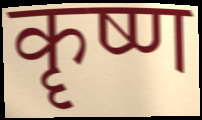
कॄष्ण